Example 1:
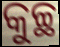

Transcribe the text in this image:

କୁଚ୍ଛ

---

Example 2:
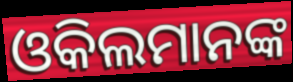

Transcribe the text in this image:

ଓକିଲମାନଙ୍କ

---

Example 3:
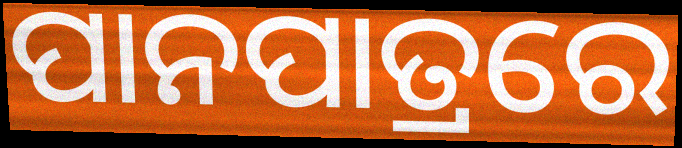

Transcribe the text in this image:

ପାନପାତ୍ରରେ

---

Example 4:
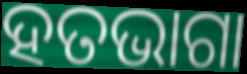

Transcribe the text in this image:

ହତଭାଗା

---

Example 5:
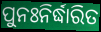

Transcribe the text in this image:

ପୁନଃନିର୍ଦ୍ଧାରିତ